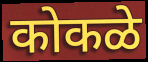
कोकळे